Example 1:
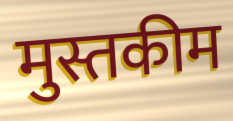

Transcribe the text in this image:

मुस्तकीम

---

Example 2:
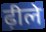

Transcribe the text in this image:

ढ़ीले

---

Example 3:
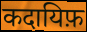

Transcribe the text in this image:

कदायिफ़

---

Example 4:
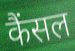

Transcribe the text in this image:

कैंसल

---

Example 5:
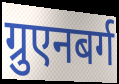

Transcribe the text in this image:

ग्रुएनबर्ग